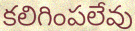
కలిగింపలేవు